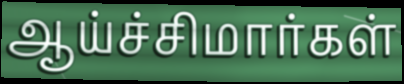
ஆய்ச்சிமார்கள்